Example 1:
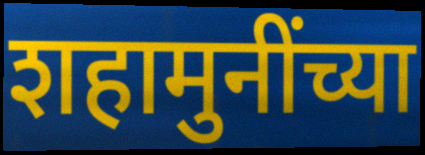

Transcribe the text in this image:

शहामुनींच्या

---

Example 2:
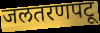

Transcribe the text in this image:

जलतरणपटू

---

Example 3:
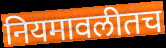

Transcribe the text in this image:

नियमावलीतच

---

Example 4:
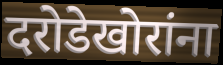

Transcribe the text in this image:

दरोडेखोरांना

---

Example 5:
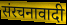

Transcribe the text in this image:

संरचनावादी